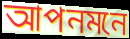
আপনমনে